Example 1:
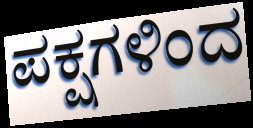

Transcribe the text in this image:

ಪಕ್ಷಗಳಿಂದ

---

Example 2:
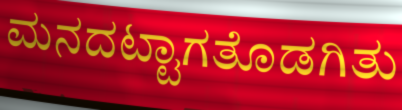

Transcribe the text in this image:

ಮನದಟ್ಟಾಗತೊಡಗಿತು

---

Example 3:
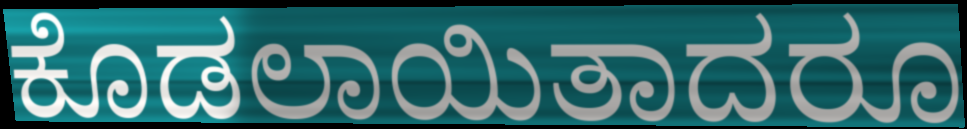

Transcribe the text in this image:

ಕೊಡಲಾಯಿತಾದರೂ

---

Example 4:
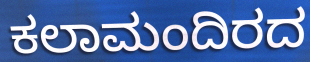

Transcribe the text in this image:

ಕಲಾಮಂದಿರದ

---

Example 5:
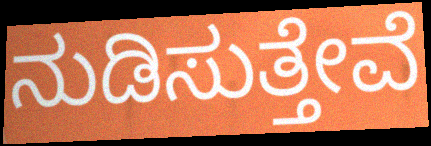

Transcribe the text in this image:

ನುಡಿಸುತ್ತೇವೆ